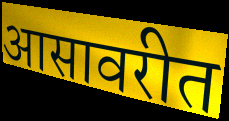
आसावरीत